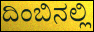
ದಿಂಬಿನಲ್ಲಿ